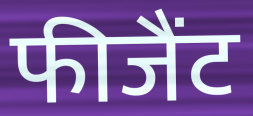
फीजैंट